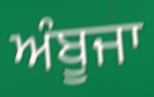
ਅੰਬੂਜਾ